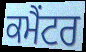
ਕਮੈਂਟਰ